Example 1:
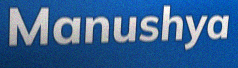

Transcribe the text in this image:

Manushya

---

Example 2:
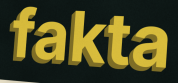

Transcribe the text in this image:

fakta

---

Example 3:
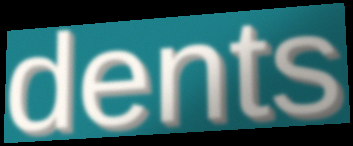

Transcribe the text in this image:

dents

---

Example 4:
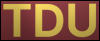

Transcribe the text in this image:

TDU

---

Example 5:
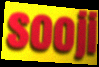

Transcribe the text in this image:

sooji